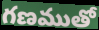
గణముతో